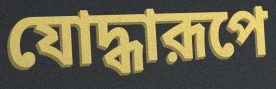
যোদ্ধারূপে